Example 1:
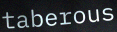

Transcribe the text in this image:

taberous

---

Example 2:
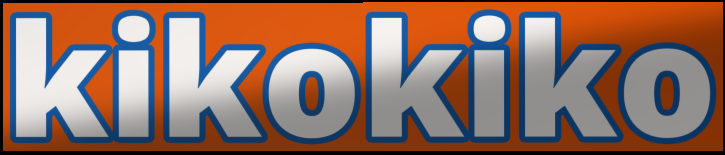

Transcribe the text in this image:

kikokiko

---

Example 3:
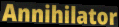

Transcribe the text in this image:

Annihilator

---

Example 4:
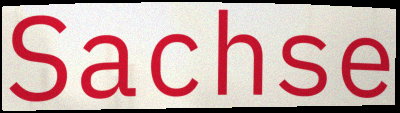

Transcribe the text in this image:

Sachse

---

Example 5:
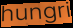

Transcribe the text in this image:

hungri